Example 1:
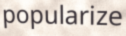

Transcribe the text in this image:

popularize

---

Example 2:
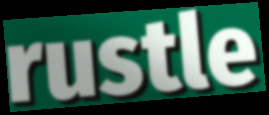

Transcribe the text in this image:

rustle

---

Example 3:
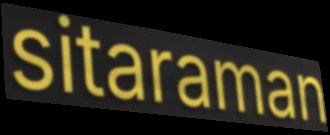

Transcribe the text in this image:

sitaraman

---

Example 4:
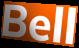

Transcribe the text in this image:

Bell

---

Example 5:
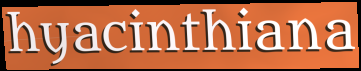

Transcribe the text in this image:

hyacinthiana